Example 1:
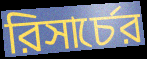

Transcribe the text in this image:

রিসার্চের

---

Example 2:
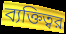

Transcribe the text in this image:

ব্যক্তিত্বর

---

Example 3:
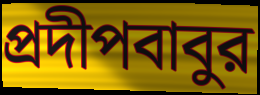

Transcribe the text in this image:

প্রদীপবাবুর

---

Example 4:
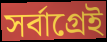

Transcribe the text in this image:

সর্বাগ্রেই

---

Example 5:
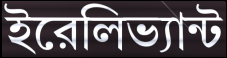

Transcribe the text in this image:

ইরেলিভ্যান্ট